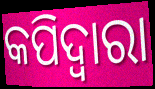
କପିଦ୍ୱାରା